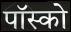
पॉस्‍को